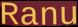
Ranu